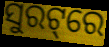
ସୁରଟ୍‌ରେ